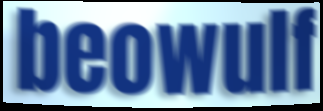
beowulf